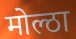
मोल्ठा